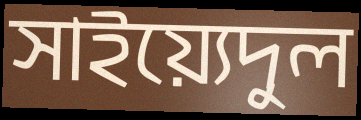
সাইয়্যেদুল